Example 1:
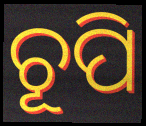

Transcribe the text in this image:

ଚୂପି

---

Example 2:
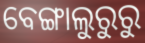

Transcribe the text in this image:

ବେଙ୍ଗାଲୁରୁରୁ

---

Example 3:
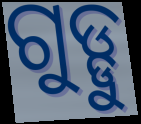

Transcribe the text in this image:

ଗୁଡ୍ଡୁ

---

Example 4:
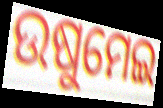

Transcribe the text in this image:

ଉଷୁମେଇ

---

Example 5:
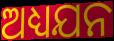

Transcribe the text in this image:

ଅଧ୍ୟଯନ